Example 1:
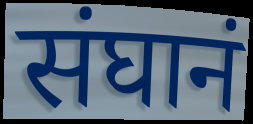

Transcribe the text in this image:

संघानं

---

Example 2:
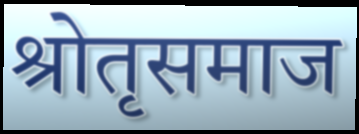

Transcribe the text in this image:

श्रोतृसमाज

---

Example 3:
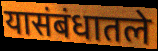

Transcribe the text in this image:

यासंबंधातले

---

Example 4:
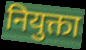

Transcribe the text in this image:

नियुक्ता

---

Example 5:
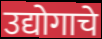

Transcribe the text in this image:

उद्योगाचे